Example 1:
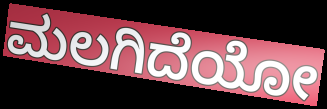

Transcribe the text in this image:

ಮಲಗಿದೆಯೋ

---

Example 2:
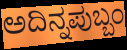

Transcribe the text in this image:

ಅದಿನ್ನಪುಬ್ಬಂ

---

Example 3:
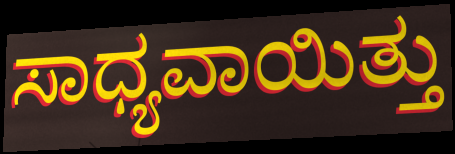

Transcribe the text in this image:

ಸಾಧ್ಯವಾಯಿತ್ತು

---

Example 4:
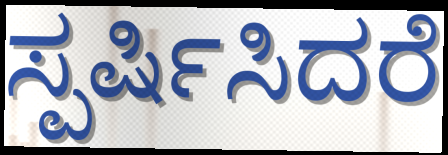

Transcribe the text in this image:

ಸ್ಪರ್ಷಿಸಿದರೆ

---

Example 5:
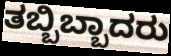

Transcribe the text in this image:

ತಬ್ಬಿಬ್ಬಾದರು